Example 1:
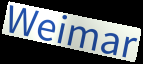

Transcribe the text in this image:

Weimar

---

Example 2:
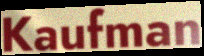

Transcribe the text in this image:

Kaufman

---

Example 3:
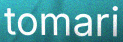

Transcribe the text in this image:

tomari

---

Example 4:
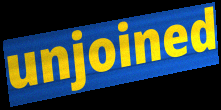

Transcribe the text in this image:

unjoined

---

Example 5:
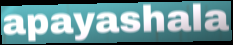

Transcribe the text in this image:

apayashala